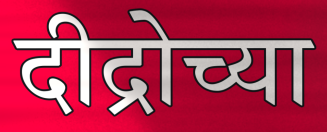
दीद्रोच्या